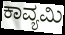
ಕಾವ್ಯಮಿ